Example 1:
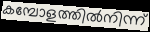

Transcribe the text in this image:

കമ്പോളത്തിൽനിന്ന്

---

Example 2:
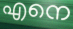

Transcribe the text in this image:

എനെ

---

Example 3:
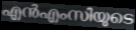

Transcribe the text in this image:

എൻഎംസിയുടെ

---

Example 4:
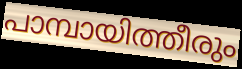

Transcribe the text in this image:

പാമ്പായിത്തീരും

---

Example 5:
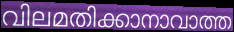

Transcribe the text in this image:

വിലമതിക്കാനാവാത്ത